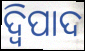
ଦ୍ୱିପାଦ